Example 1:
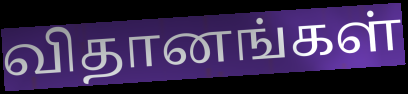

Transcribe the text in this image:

விதானங்கள்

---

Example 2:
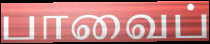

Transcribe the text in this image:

பாவைப்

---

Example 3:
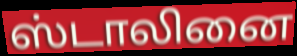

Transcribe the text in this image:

ஸ்டாலினை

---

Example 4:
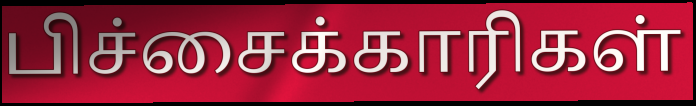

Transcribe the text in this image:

பிச்சைக்காரிகள்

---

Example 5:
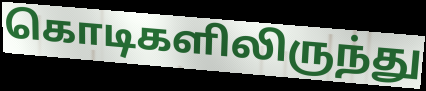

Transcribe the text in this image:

கொடிகளிலிருந்து